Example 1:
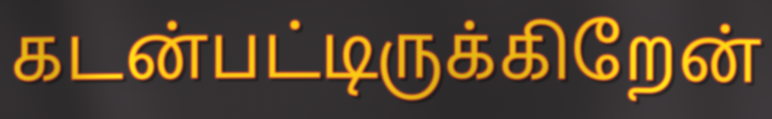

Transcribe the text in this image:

கடன்பட்டிருக்கிறேன்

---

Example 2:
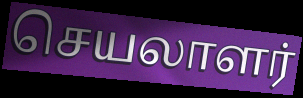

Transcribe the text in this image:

செயலாளர்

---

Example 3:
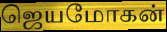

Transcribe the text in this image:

ஜெயமோகன்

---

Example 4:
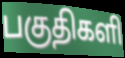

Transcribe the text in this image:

பகுதிகளி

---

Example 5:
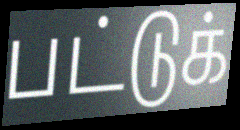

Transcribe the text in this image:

பட்டுக்